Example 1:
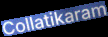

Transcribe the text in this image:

Collatikaram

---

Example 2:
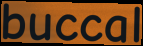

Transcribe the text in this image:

buccal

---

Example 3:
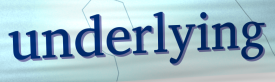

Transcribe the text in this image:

underlying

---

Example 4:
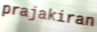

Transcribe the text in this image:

prajakiran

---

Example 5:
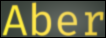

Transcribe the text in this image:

Aber